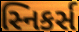
સ્નિકર્સ